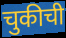
चुकीची